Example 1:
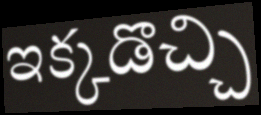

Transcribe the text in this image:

ఇక్కడొచ్చి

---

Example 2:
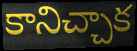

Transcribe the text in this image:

కానిచ్చాక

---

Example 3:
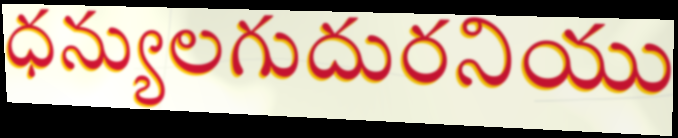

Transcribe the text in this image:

ధన్యులగుదురనియు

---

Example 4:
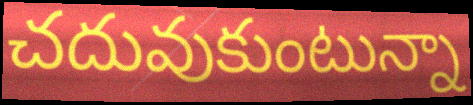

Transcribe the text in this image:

చదువుకుంటున్నా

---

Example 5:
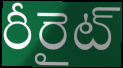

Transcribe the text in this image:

రీరైట్